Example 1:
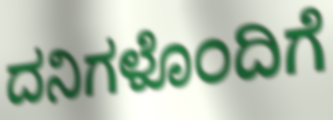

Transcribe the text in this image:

ದನಿಗಳೊಂದಿಗೆ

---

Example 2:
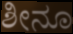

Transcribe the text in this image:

ಶೀನೂ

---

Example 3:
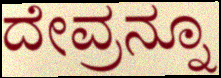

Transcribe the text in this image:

ದೇವ್ರನ್ನೂ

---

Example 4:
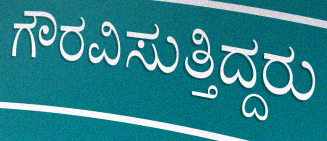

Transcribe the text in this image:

ಗೌರವಿಸುತ್ತಿದ್ದರು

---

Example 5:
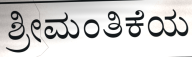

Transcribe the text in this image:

ಶ್ರೀಮಂತಿಕೆಯ